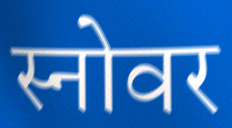
स्नोवर